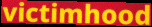
victimhood